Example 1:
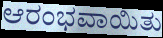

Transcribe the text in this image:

ಆರಂಭವಾಯಿತು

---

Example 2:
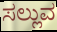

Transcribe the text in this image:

ಸಲ್ಲುವ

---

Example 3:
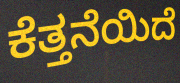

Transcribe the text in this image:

ಕೆತ್ತನೆಯಿದೆ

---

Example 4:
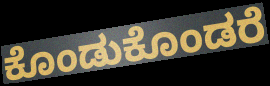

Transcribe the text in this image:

ಕೊಂಡುಕೊಂಡರೆ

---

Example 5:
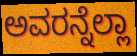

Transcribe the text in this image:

ಅವರನ್ನೆಲ್ಲಾ